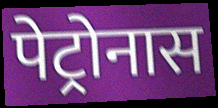
पेट्रोनास